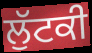
ਲੁੱਟਕੀ